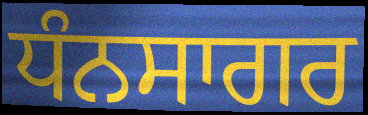
ਧੰਨਸਾਗਰ